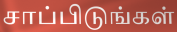
சாப்பிடுங்கள்